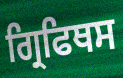
ਗ੍ਰਿਫਿਥਸ